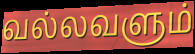
வல்லவளும்